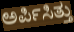
ಅರ್ಪಿಸಿತ್ತು